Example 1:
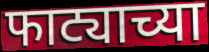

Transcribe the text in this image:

फाट्याच्या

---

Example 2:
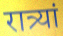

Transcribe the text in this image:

रात्र्यां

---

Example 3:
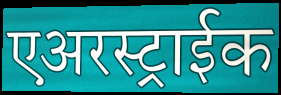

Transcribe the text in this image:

एअरस्ट्राईक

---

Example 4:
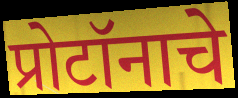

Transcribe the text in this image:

प्रोटॉनाचे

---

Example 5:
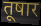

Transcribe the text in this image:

तूषार